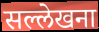
सल्लेखना